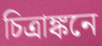
চিত্রাঙ্কনে